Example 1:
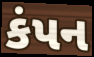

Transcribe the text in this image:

કંપન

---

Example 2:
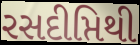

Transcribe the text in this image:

રસદીપ્તિથી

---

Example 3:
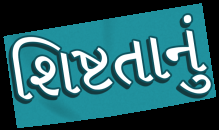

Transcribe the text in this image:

શિષ્ટતાનું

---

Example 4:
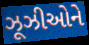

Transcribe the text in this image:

ઝૂઝીઓને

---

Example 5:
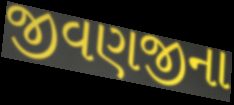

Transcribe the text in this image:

જીવણજીના